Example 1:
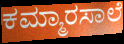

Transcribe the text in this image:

ಕಮ್ಮಾರಸಾಲೆ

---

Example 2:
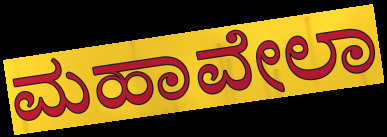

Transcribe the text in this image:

ಮಹಾವೇಲಾ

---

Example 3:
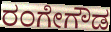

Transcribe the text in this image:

ರಂಗೇಗೌಡ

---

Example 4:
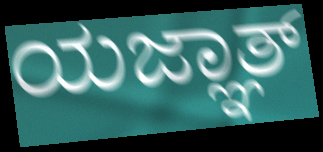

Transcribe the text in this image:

ಯಜ್ಞಾತ್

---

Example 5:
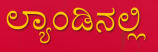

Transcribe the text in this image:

ಲ್ಯಾಂಡಿನಲ್ಲಿ